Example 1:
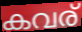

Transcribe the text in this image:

കവര്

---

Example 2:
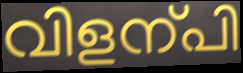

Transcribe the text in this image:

വിളന്പി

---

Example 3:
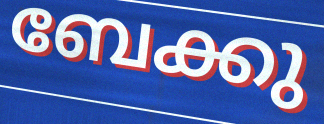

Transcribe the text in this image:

ബേക്കു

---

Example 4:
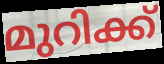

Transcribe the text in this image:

മുറിക്ക്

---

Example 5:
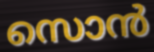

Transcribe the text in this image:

സൊൻ